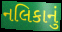
નલિકાનું